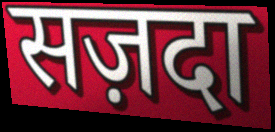
सज़दा